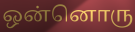
ஒன்னொரு